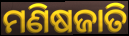
ମଣିଷଜାତି